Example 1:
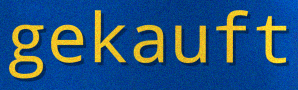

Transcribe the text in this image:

gekauft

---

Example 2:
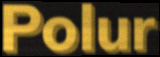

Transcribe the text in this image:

Polur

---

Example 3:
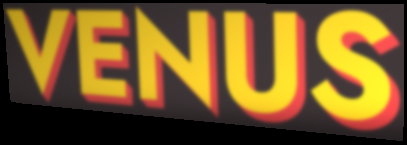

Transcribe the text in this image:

VENUS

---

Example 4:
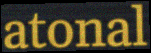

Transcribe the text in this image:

atonal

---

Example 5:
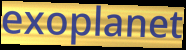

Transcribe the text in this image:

exoplanet